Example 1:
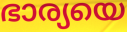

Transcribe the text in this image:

ഭാര്യയെ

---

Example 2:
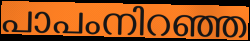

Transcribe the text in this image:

പാപംനിറഞ്ഞ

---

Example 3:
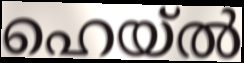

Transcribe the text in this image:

ഹെയ്ൽ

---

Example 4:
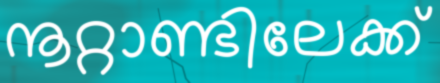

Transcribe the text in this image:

നൂറ്റാണ്ടിലേക്ക്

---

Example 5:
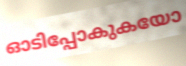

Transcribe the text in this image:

ഓടിപ്പോകുകയോ